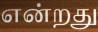
என்றது